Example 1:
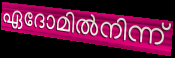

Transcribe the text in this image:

ഏദോമിൽനിന്ന്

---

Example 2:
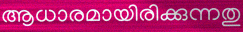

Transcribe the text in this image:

ആധാരമായിരിക്കുന്നതു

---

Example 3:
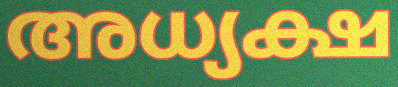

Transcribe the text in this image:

അധ്യക്ഷ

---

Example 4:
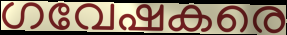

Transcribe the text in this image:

ഗവേഷകരെ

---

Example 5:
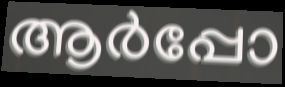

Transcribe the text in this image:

ആർപ്പോ